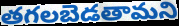
తగలబెడతామని